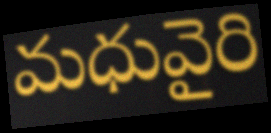
మధువైరి